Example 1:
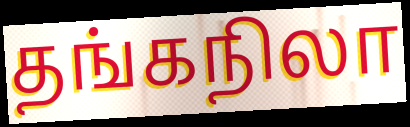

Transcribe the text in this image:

தங்கநிலா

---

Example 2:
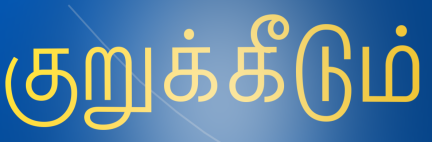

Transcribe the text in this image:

குறுக்கீடும்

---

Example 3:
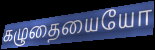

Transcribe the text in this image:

கழுதையையோ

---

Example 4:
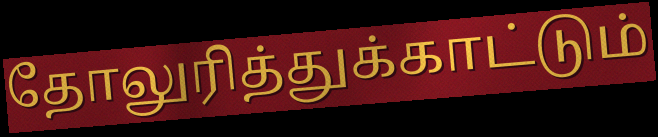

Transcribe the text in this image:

தோலுரித்துக்காட்டும்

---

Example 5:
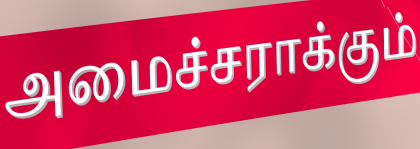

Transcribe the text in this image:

அமைச்சராக்கும்